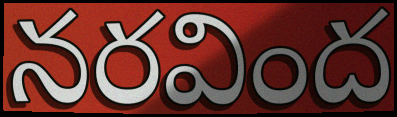
నరవింద